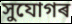
সুযোগৰ